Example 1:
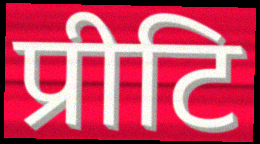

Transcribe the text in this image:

प्रीटि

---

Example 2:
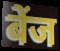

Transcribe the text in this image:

बेंज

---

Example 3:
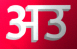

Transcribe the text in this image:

अउ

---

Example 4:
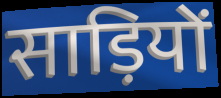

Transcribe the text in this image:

साड़ियों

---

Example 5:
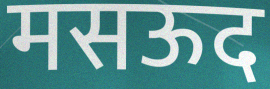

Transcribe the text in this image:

मसऊद